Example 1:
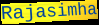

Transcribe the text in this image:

Rajasimha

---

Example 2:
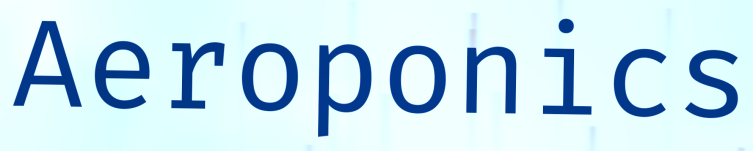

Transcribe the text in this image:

Aeroponics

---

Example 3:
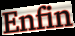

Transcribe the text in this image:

Enfin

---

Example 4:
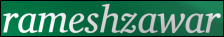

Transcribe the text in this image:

rameshzawar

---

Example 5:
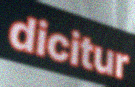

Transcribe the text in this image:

dicitur